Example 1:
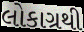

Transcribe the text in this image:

લોકાગ્રથી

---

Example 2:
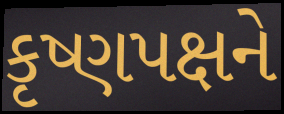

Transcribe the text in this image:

કૃષ્ણપક્ષને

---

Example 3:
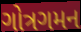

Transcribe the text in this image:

ગોત્રગમન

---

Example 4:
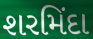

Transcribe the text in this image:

શરમિંદા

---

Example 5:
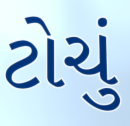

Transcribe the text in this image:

ટોચું